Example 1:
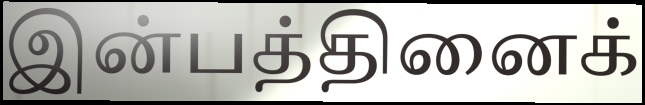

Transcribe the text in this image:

இன்பத்தினைக்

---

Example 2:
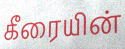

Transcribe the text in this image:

கீரையின்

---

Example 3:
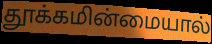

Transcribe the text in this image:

தூக்கமின்மையால்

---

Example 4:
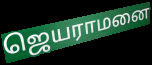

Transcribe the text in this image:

ஜெயராமனை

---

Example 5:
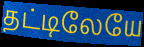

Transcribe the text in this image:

தட்டிலேயே